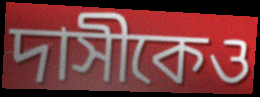
দাসীকেও